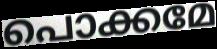
പൊക്കമേ